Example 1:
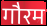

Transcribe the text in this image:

गौरम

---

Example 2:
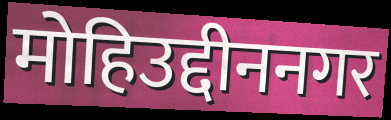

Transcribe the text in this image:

मोहिउद्दीननगर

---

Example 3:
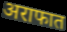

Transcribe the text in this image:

अराफात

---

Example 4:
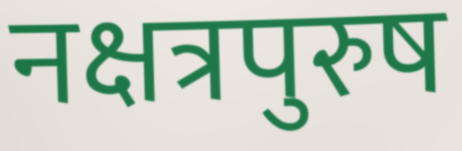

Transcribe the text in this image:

नक्षत्रपुरुष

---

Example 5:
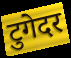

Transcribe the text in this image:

टुगेदर